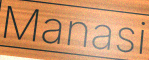
Manasi